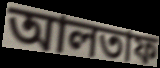
আলতাফ